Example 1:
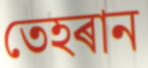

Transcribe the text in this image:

তেহৰান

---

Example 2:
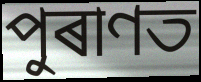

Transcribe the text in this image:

পুৰাণত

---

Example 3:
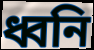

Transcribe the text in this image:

ধ্বনি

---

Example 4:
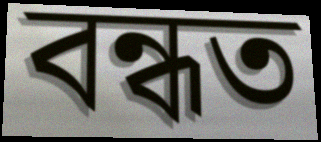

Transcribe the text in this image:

বন্ধত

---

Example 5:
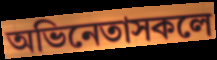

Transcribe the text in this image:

অভিনেতাসকলে